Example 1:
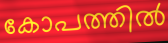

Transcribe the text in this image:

കോപത്തിൽ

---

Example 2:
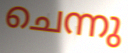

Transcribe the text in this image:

ചെന്നു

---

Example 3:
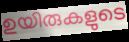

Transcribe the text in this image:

ഉയിരുകളുടെ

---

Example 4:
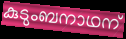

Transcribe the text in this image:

കുടുംബനാഥന്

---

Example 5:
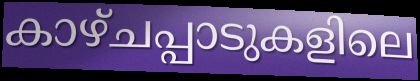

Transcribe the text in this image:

കാഴ്ചപ്പാടുകളിലെ